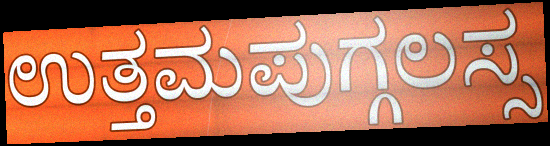
ಉತ್ತಮಪುಗ್ಗಲಸ್ಸ